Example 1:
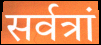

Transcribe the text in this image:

सर्वत्रां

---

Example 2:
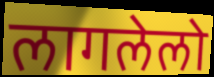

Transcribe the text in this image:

लागलेलो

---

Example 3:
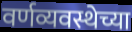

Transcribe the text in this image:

वर्णव्यवस्थेच्या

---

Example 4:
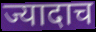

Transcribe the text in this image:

ज्यादाच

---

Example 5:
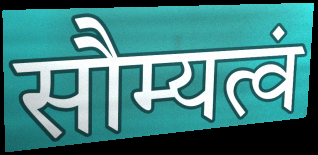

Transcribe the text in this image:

सौम्यत्वं